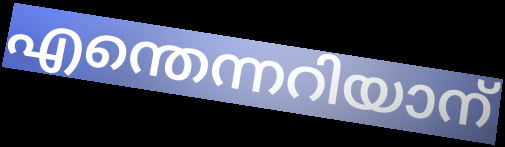
എന്തെന്നറിയാന്